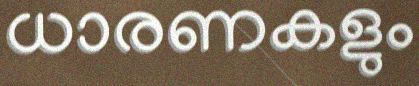
ധാരണകളും